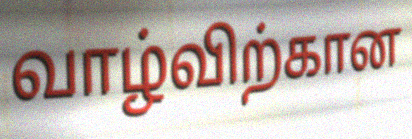
வாழ்விற்கான